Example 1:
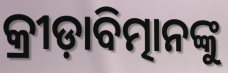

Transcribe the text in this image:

କ୍ରୀଡ଼ାବିତ୍ମାନଙ୍କୁ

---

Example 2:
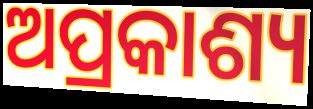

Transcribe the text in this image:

ଅପ୍ରକାଶ୍ୟ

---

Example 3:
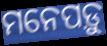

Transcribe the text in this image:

ମନେପଡ଼ୁ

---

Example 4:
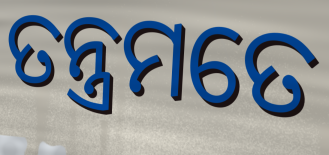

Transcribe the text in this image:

ତନ୍ତ୍ରମତେ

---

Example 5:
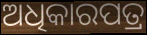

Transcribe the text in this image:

ଅଧିକାରପତ୍ର